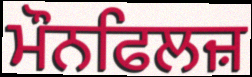
ਮੌਨਫਿਲਜ਼